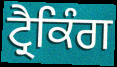
ਟ੍ਰੈਕਿੰਗ